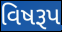
વિષરૂપ